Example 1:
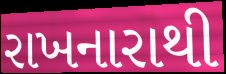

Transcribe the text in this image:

રાખનારાથી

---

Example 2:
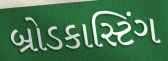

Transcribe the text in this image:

બ્રોડકાસ્ટિંગ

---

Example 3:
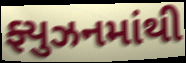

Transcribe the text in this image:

ફ્યુઝનમાંથી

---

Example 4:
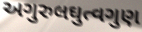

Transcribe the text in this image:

અગુરુલઘુત્વગુણ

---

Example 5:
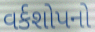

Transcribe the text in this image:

વર્કશોપનો